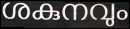
ശകുനവും